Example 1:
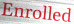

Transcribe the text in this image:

Enrolled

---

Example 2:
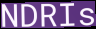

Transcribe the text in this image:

NDRIs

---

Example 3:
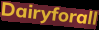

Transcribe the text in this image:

Dairyforall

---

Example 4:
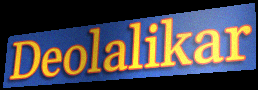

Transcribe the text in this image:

Deolalikar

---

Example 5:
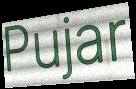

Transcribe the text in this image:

Pujar